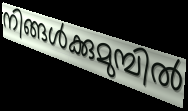
നിങ്ങൾക്കുമുമ്പിൽ